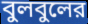
বুলবুলের